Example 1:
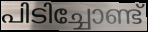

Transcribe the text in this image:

പിടിച്ചോണ്ട്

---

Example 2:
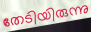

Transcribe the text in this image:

തേടിയിരുന്നു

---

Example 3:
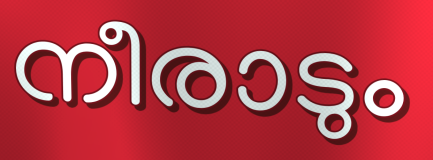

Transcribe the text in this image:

നീരാടും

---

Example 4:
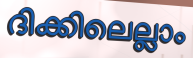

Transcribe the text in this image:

ദിക്കിലെല്ലാം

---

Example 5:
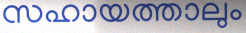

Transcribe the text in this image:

സഹായത്താലും